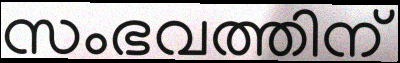
സംഭവത്തിന്